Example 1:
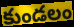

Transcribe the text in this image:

కుండలం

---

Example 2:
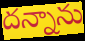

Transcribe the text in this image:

దన్నాను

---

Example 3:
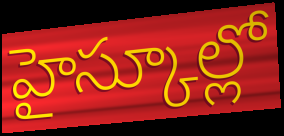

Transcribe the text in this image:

హైస్కూల్లో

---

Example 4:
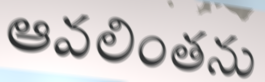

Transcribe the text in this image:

ఆవలింతను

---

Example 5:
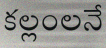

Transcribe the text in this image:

కల్లంలనే